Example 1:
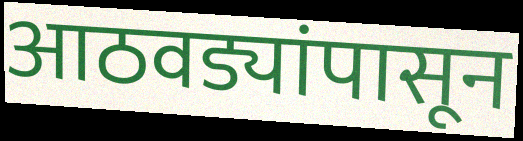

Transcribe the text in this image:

आठवड्यांपासून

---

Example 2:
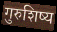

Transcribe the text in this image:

गुरुशिष्य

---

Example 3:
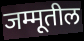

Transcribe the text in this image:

जम्मूतील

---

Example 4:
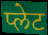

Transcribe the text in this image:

प्लेट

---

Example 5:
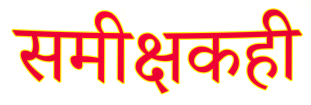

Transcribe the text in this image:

समीक्षकही